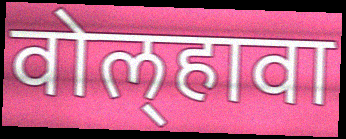
वोल्हावा